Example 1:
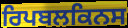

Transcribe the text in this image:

ਰਿਪਬਲਕਿਨਸ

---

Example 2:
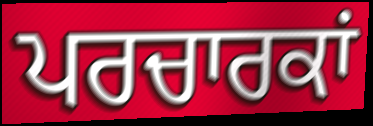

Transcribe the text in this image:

ਪਰਚਾਰਕਾਂ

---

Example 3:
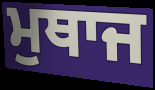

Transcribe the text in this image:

ਮੁਥਾਜ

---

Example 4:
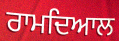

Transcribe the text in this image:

ਰਾਮਦਿਆਲ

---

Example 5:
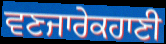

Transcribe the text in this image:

ਵਣਜਾਰੇਕਹਾਣੀ